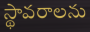
స్థావరాలను